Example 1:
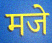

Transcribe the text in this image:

मजे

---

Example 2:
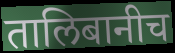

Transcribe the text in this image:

तालिबानीच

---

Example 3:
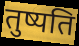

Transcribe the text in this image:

तुष्यति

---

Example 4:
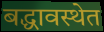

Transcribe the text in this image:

बद्धावस्थेत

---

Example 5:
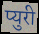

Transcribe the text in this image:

प्युरी